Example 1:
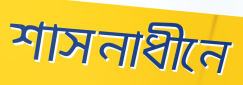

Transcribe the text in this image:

শাসনাধীনে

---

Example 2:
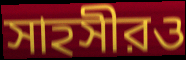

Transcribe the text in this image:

সাহসীরও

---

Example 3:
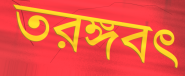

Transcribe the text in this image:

তরঙ্গবৎ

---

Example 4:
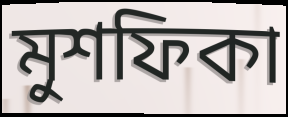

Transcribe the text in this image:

মুশফিকা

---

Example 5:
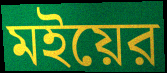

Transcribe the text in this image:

মইয়ের